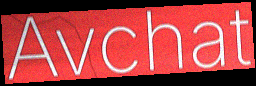
Avchat